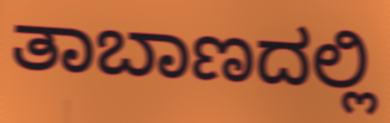
ತಾಬಾಣದಲ್ಲಿ